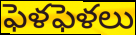
ఫెళఫెళలు